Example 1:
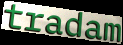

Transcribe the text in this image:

tradam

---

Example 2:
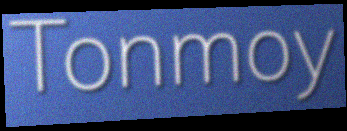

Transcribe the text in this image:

Tonmoy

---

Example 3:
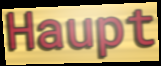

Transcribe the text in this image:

Haupt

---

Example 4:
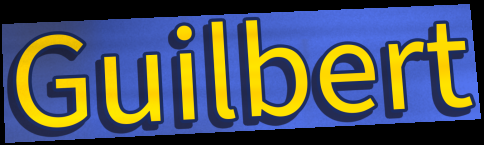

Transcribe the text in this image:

Guilbert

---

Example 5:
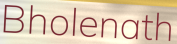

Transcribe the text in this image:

Bholenath